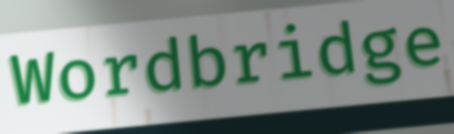
Wordbridge